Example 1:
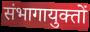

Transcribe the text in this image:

संभागायुक्तों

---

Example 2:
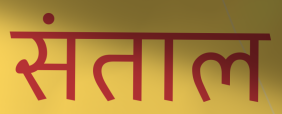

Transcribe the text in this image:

संताल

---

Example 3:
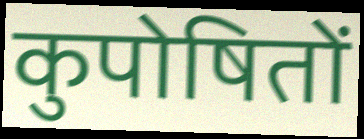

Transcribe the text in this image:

कुपोषितों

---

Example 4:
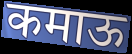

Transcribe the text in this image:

कमाऊ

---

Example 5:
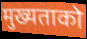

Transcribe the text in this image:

मुख्यताको